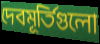
দেবমূর্তিগুলো